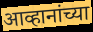
आव्हानांच्या